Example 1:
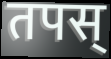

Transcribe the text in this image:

तपस्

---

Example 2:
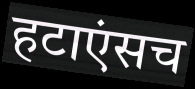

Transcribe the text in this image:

हटाएंसच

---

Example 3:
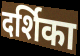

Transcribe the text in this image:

दर्शिका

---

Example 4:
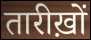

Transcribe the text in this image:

तारीख़ों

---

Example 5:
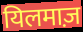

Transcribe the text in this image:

यिलमाज़